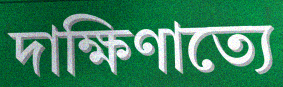
দাক্ষিণাত্যে